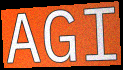
AGI